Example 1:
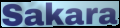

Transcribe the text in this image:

Sakara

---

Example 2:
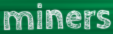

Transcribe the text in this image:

miners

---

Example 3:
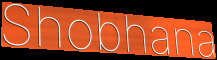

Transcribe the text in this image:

Shobhana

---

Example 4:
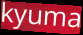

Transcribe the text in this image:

kyuma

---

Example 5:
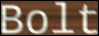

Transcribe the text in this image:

Bolt